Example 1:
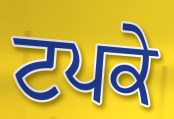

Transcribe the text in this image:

ਟਪਕੇ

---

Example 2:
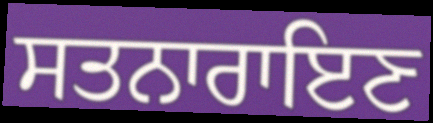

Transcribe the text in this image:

ਸਤਨਾਰਾਇਣ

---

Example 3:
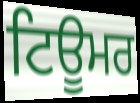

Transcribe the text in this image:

ਟਿਊਮਰ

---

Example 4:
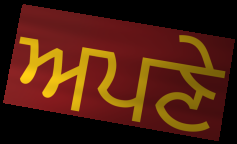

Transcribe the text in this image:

ਅਪਣੇ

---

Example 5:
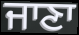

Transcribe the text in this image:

ਜਾਣਾ